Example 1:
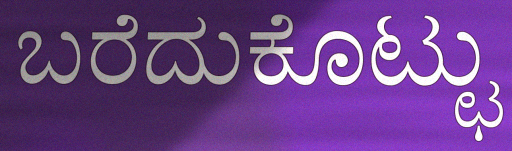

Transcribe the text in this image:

ಬರೆದುಕೊಟ್ಟು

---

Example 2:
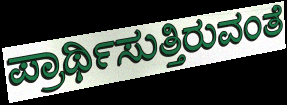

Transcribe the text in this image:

ಪ್ರಾರ್ಥಿಸುತ್ತಿರುವಂತೆ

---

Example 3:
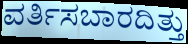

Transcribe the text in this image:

ವರ್ತಿಸಬಾರದಿತ್ತು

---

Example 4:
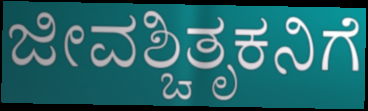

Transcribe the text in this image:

ಜೀವಶ್ಚಿತೃಕನಿಗೆ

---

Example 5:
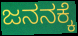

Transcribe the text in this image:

ಜನನಕ್ಕೆ